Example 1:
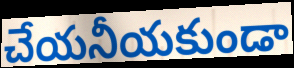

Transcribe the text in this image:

చేయనీయకుండా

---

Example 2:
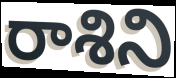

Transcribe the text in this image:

రాశిని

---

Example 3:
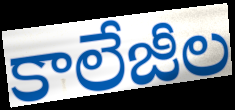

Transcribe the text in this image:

కాలేజీల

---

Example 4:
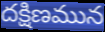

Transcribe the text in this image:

దక్షిణమున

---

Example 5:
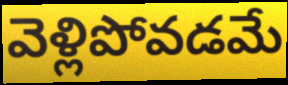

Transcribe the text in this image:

వెళ్లిపోవడమే